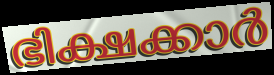
ഭിക്ഷക്കാർ